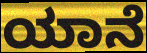
ಯಾನೆ